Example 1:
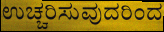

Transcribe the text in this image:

ಉಚ್ಚರಿಸುವುದರಿಂದ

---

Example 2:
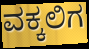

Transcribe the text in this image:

ವಕ್ಕಲಿಗ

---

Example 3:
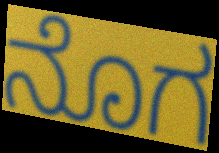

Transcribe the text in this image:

ನೊಗ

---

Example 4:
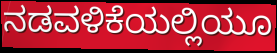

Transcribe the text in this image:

ನಡವಳಿಕೆಯಲ್ಲಿಯೂ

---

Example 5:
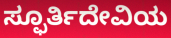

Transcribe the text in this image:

ಸ್ಫೂರ್ತಿದೇವಿಯ